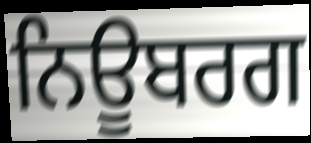
ਨਿਊਬਰਗ